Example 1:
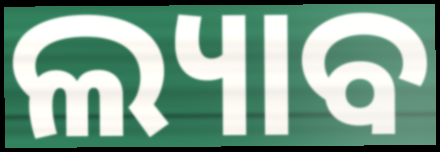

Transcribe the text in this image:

ଲ୍ୟାବ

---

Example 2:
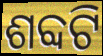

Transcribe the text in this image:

ଶବ୍ଦଟି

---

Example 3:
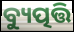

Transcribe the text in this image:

ବ୍ୟୁତ୍ପତ୍ତି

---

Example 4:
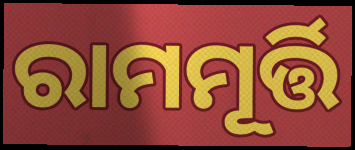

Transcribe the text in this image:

ରାମମୂର୍ତ୍ତି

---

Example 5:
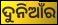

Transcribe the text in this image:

ଦୁନିଆଁର